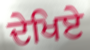
ਦੇਖਿਏ